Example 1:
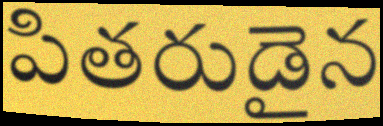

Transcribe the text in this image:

పితరుడైన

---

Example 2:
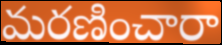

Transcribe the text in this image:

మరణించారా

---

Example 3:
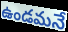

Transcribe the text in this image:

ఉండమనే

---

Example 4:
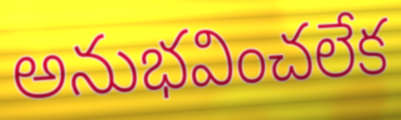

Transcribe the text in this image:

అనుభవించలేక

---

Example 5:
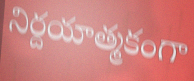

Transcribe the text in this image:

నిర్దయాత్మకంగా